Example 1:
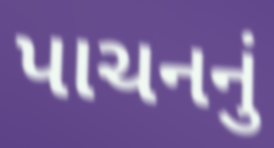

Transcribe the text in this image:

પાચનનું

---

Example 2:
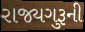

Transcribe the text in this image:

રાજ્યગુરૂની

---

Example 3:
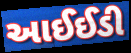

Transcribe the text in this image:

આઈઈડી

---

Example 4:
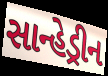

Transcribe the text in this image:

સાન્હેડ્રીન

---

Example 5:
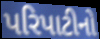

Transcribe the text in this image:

પરિપાટીનો